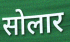
सोलार